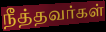
நீத்தவர்கள்